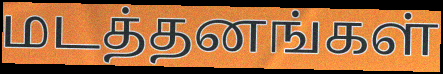
மடத்தனங்கள்